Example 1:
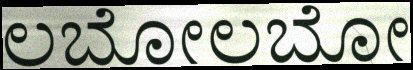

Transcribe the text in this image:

ಲಬೋಲಬೋ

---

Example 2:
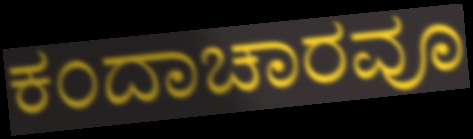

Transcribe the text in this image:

ಕಂದಾಚಾರವೂ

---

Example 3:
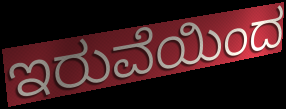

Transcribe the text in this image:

ಇರುವೆಯಿಂದ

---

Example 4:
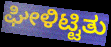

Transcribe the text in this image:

ಘೀಳಿಟ್ಟಿತು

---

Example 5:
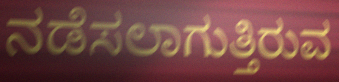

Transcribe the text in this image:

ನಡೆಸಲಾಗುತ್ತಿರುವ